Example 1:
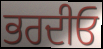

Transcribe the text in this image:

ਭਰਦੀਓ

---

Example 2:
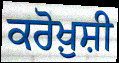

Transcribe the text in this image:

ਕਰੋਖ਼ੁਸ਼ੀ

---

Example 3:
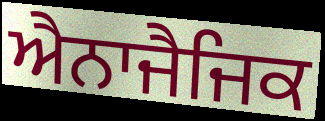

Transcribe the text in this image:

ਐਨਾਜੈਜਿਕ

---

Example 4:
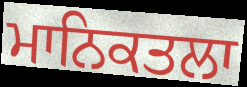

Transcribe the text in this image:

ਮਾਨਿਕਤਲਾ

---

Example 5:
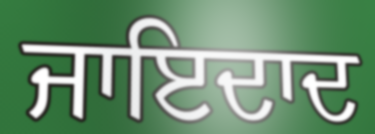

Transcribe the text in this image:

ਜਾਇਦਾਦ